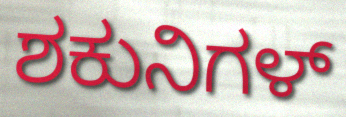
ಶಕುನಿಗಳ್